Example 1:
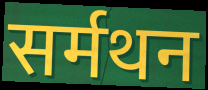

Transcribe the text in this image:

सर्मथन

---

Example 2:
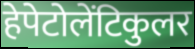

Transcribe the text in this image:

हेपेटोलेंटिकुलर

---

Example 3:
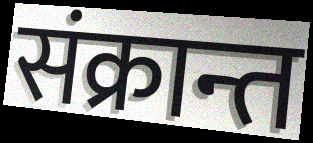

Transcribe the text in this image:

संक्रान्त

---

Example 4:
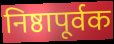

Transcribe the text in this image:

निष्ठापूर्वक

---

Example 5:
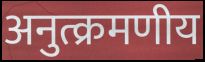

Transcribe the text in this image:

अनुत्क्रमणीय